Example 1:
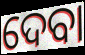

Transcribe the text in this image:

ଦେବା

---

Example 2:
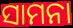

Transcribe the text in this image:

ସାମନା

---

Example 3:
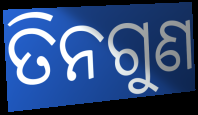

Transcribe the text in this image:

ତିନଗୁଣ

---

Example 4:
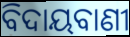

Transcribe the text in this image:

ବିଦାୟବାଣୀ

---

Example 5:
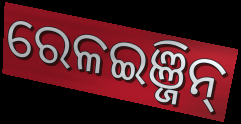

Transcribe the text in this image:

ରେଳଇଞ୍ଜିନ୍